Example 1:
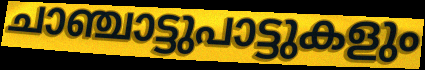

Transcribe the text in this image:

ചാഞ്ചാട്ടുപാട്ടുകളും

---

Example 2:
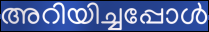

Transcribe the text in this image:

അറിയിച്ചപ്പോൾ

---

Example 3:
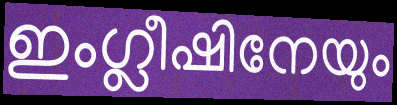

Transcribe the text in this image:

ഇംഗ്ലീഷിനേയും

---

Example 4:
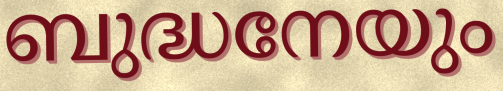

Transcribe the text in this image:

ബുദ്ധനേയും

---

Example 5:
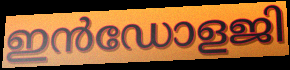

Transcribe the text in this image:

ഇൻഡോളജി